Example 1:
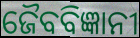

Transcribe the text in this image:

ଜୈବବିଜ୍ଞାନୀ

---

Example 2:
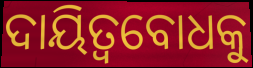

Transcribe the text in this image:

ଦାୟିତ୍ୱବୋଧକୁ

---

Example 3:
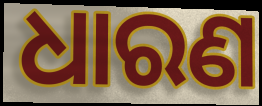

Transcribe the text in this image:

ଧାରଣ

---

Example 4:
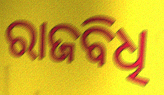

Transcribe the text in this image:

ରାଜବିଧି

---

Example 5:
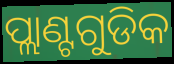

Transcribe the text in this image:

ପ୍ଲାଣ୍ଟଗୁଡିକ